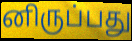
னிருப்பது